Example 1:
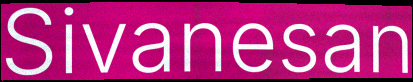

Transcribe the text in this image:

Sivanesan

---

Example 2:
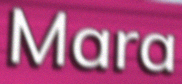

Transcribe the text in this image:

Mara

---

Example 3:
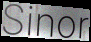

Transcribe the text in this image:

Sinor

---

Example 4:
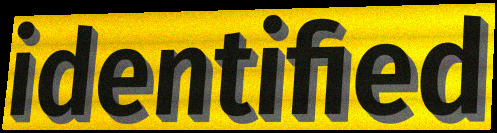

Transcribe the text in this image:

identified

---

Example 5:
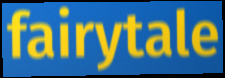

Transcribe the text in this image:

fairytale